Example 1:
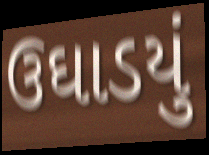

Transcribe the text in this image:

ઉઘાડયું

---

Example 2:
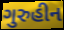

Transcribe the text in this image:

ગુરુહીન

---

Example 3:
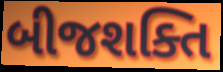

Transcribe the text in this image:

બીજશક્તિ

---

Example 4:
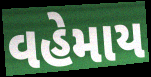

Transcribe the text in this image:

વહેમાય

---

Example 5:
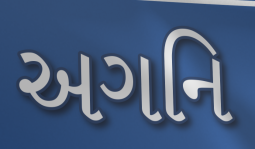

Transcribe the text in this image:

અગનિ